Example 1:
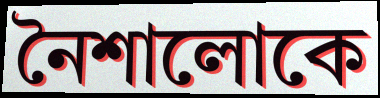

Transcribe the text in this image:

নৈশালোকে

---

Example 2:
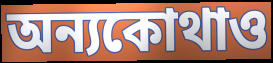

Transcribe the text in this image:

অন্যকোথাও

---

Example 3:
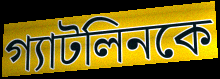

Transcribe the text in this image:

গ্যাটলিনকে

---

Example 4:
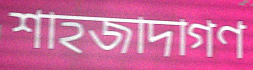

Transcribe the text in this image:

শাহজাদাগণ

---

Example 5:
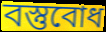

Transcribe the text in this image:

বস্তুবোধ